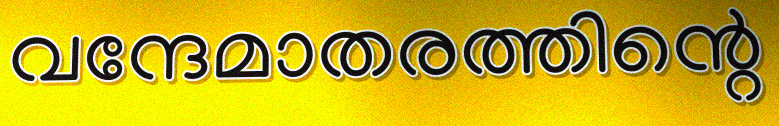
വന്ദേമാതരത്തിന്റെ